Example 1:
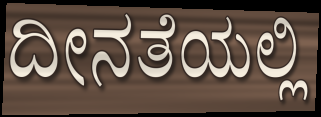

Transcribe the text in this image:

ದೀನತೆಯಲ್ಲಿ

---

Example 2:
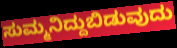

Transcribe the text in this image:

ಸುಮ್ಮನಿದ್ದುಬಿಡುವುದು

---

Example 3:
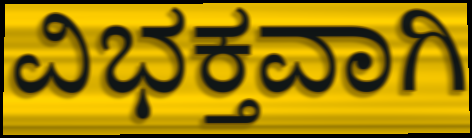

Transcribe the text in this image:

ವಿಭಕ್ತವಾಗಿ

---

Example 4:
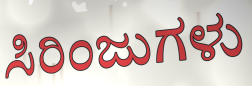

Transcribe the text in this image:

ಸಿರಿಂಜುಗಳು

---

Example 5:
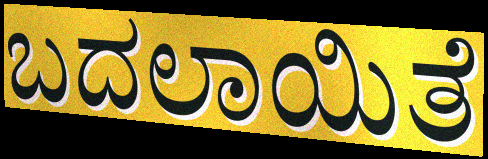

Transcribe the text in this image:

ಬದಲಾಯಿತೆ